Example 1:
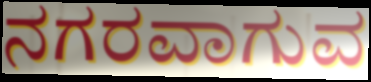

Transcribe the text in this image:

ನಗರವಾಗುವ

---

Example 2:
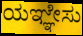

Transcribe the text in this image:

ಯಞ್ಞೇಸು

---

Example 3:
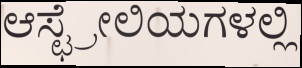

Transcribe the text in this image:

ಆಸ್ಟ್ರೇಲಿಯಗಳಲ್ಲಿ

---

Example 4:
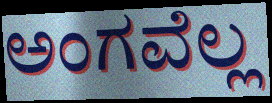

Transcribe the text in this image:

ಅಂಗವೆಲ್ಲ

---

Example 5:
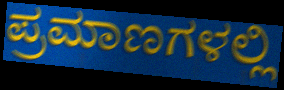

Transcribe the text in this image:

ಪ್ರಮಾಣಗಳಲ್ಲಿ